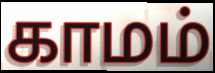
காமம்